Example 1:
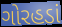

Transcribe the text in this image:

ગોરહડાં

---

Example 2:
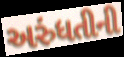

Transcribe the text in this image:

અરુંધતીની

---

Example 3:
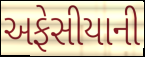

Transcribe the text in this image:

અફેસીયાની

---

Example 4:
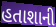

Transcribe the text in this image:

હતાશાની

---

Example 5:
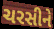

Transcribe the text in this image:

ચરસીને